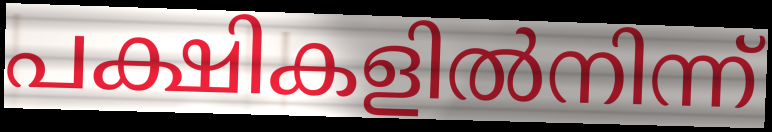
പക്ഷികളിൽനിന്ന്